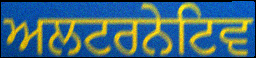
ਅਲਟਰਨੇਟਿਵ